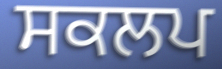
ਸਕਲਪ